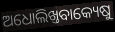
ଅଧୋଲିଖ୍ତବାକ୍ୟେଷୁ